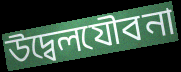
উদ্বেলযৌবনা